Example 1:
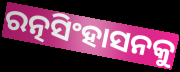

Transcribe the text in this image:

ରତ୍ନସିଂହାସନକୁ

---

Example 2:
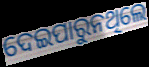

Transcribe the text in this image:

ଦେଇପାରୁନଥିଲେ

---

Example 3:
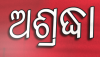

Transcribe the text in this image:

ଅଶ୍ରଦ୍ଧା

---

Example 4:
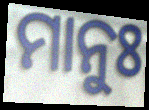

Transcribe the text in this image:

ମାନୁଃ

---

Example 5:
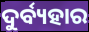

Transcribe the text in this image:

ଦୁର୍ବ୍ୟହାର